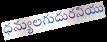
ధన్యులగుదురనియు